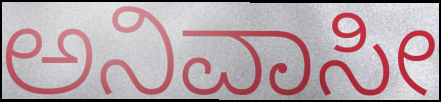
ಅನಿವಾಸೀ